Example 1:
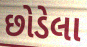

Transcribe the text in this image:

છોડેલા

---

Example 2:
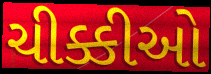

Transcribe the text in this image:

ચીક્કીઓ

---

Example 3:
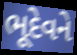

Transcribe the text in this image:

ભૂદેવને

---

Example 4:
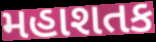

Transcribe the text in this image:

મહાશતક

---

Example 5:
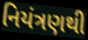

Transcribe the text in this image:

નિયંત્રણથી